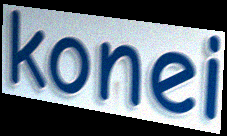
konei